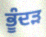
ਭੂੰਦੜ